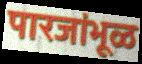
पारजांभूळ